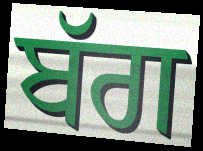
ਬੱਗ